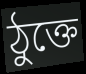
ঠুক্তে